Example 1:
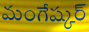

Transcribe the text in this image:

మంగేష్కర్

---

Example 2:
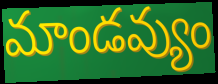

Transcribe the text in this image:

మాండవ్యుం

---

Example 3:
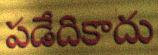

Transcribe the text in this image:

పడేదికాదు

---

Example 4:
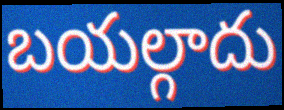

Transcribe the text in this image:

బయల్గాదు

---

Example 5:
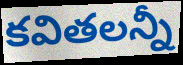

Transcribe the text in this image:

కవితలన్నీ